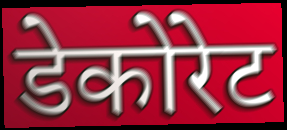
डेकोरेट